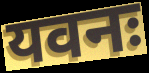
यवनः